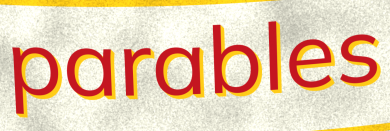
parables